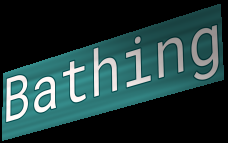
Bathing